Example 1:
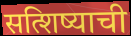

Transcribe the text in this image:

सत्शिष्याची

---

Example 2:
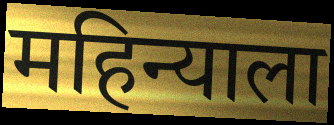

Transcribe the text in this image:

महिन्याला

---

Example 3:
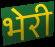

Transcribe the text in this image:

भेरी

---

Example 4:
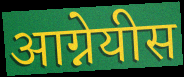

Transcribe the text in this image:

आग्नेयीस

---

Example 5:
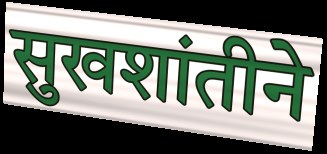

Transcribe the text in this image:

सुखशांतीने